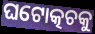
ଘଟୋତ୍କଚକୁ